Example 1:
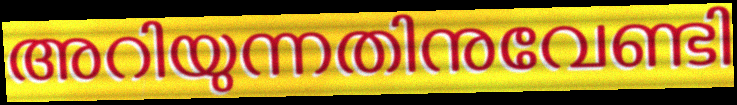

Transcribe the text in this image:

അറിയുന്നതിനുവേണ്ടി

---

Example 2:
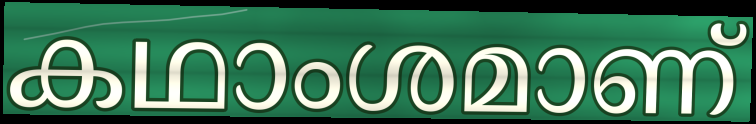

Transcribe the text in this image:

കഥാംശമാണ്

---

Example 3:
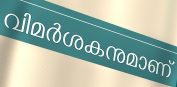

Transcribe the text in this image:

വിമർശകനുമാണ്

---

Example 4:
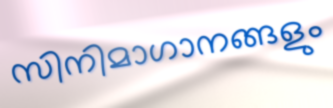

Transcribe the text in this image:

സിനിമാഗാനങ്ങളും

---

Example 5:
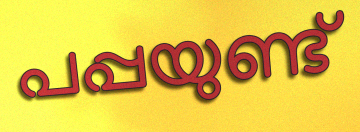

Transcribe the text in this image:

പപ്പയുണ്ട്